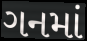
ગનમાં